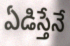
ఏడిస్తేనే